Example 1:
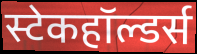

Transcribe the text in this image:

स्टेकहॉल्डर्स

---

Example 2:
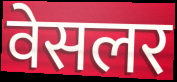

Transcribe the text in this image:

वेसलर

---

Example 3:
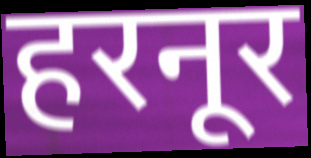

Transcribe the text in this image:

हरनूर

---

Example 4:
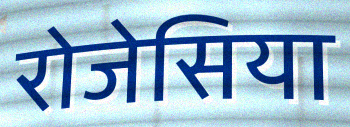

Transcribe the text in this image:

रोजेसिया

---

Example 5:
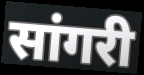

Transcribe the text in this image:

सांगरी